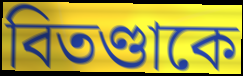
বিতণ্ডাকে